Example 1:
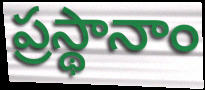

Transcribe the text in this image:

ప్రస్థానాం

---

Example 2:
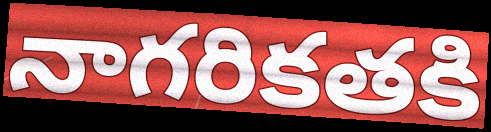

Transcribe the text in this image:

నాగరికతకి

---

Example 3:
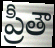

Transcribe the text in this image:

ప్రీతౌ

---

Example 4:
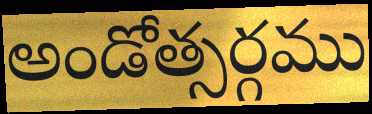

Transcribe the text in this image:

అండోత్సర్గము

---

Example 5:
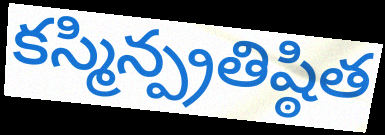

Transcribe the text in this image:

కస్మిన్ప్రతిష్ఠిత